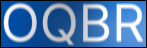
OQBR